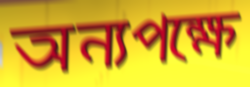
অন্যপক্ষে